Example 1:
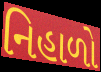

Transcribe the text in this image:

નિહાળો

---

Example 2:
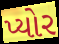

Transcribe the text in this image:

પ્યોર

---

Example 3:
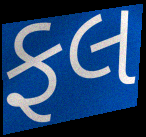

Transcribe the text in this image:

ફલ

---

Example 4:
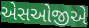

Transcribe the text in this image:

એસઓજીએ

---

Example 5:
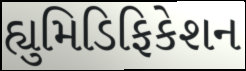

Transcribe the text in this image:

હ્યુમિડિફિકેશન